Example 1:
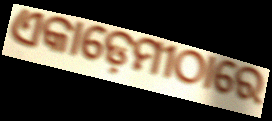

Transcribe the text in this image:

ଏକାଡ଼େମୀଠାରେ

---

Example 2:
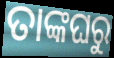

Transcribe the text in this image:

ତାଙ୍କଘରୁ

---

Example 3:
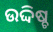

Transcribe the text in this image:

ଉଦ୍ଦିଷ୍ଚ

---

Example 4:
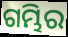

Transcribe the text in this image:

ଗମ୍ଭିର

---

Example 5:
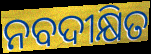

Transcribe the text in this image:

ନବଦୀକ୍ଷିତ